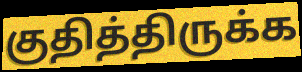
குதித்திருக்க